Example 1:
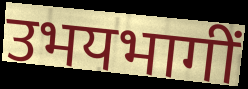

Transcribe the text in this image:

उभयभागीं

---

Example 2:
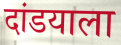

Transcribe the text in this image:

दांडयाला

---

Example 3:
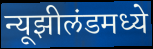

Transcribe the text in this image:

न्यूझीलंडमध्ये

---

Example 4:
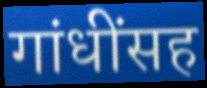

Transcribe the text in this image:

गांधींसह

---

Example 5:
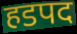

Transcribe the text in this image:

हडपद